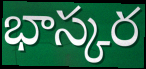
భాస్కర